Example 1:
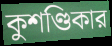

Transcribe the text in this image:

কুশণ্ডিকার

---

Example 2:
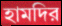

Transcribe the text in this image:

হামদির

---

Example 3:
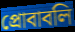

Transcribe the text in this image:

প্রোবাবলি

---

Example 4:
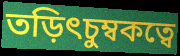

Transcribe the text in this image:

তড়িৎচুম্বকত্বে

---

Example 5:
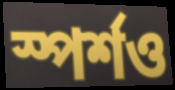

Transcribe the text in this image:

স্পর্শও